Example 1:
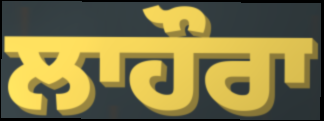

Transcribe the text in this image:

ਲਾਹੌਰਾ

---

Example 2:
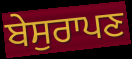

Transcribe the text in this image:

ਬੇਸੁਰਾਪਣ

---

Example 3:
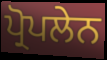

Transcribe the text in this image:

ਪ੍ਰੋਪਲੇਨ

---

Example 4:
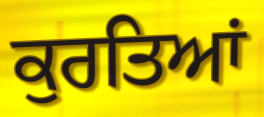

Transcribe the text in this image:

ਕੁਰਤਿਆਂ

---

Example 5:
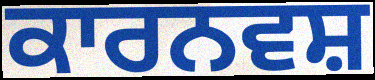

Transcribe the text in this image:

ਕਾਰਨਵਸ਼